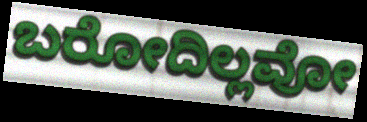
ಬರೋದಿಲ್ಲವೋ